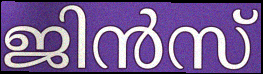
ജിൻസ്